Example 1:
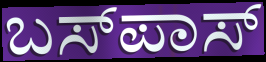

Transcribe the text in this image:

ಬಸ್‍ಪಾಸ್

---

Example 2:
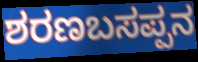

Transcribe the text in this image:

ಶರಣಬಸಪ್ಪನ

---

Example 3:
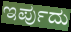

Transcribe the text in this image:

ಇರ್ಪುದು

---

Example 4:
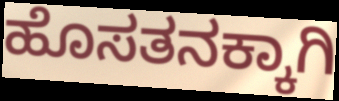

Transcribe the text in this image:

ಹೊಸತನಕ್ಕಾಗಿ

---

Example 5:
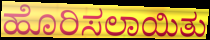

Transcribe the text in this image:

ಹೊರಿಸಲಾಯಿತು